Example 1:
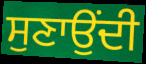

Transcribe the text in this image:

ਸੁਣਾਉਂਦੀ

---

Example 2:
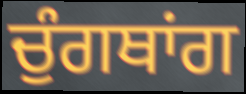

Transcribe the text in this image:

ਚੁੰਗਥਾਂਗ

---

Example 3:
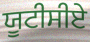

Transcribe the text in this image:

ਯੂਟੀਸੀਏ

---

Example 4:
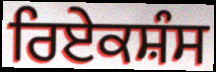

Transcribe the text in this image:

ਰਿਏਕਸ਼ੰਸ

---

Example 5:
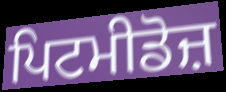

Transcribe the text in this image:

ਪਿਟਮੀਡੋਜ਼